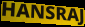
HANSRAJ